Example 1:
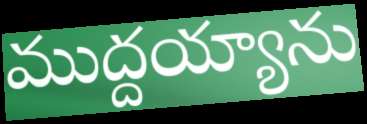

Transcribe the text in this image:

ముద్దయ్యాను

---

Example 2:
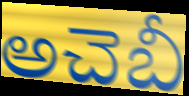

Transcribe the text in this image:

అచెబీ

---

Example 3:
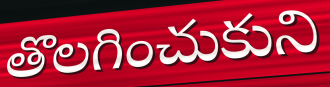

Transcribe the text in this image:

తొలగించుకుని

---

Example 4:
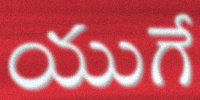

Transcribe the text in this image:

యుగే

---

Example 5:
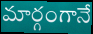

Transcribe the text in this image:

మార్గంగానే